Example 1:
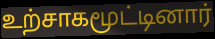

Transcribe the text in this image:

உற்சாகமூட்டினார்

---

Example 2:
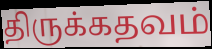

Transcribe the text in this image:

திருக்கதவம்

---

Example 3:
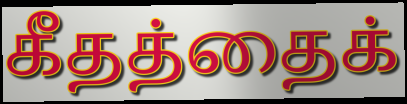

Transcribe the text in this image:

கீதத்தைக்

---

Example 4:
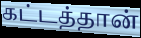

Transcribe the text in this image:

கட்டத்தான்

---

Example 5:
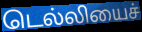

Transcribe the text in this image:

டெல்லியைச்